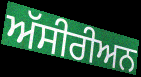
ਅੱਸੀਰੀਅਨ